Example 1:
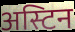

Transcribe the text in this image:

अस्टिन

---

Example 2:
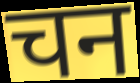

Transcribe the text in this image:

चन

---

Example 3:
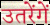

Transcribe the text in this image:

उतरेंगें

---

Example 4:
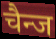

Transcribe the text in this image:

चैन्ज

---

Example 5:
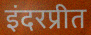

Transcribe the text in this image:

इंदरप्रीत